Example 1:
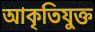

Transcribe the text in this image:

আকৃতিযুক্ত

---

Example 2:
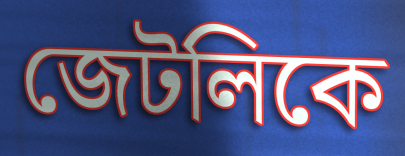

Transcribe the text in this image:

জেটলিকে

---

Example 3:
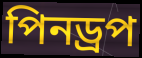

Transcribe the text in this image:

পিনড্রপ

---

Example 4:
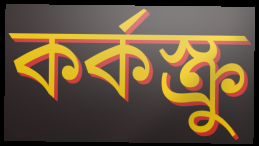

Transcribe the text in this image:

কর্কস্ক্রু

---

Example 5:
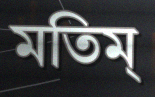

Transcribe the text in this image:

মতিম্